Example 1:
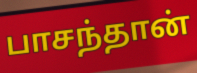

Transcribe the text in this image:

பாசந்தான்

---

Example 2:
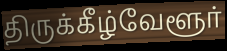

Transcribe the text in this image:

திருக்கீழ்வேளூர்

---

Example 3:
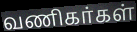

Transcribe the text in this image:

வணிகர்கள்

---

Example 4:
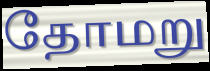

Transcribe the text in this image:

தோமறு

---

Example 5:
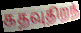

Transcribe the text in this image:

கதவுதிறந்